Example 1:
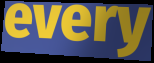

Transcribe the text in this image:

every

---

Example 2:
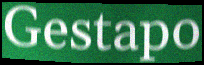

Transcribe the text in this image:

Gestapo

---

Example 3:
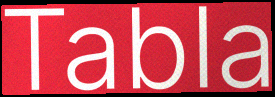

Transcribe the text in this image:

Tabla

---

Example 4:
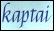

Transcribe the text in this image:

kaptai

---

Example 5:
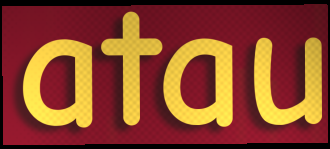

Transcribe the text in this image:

atau